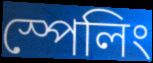
স্পেলিং